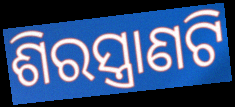
ଶିରସ୍ତ୍ରାଣଟି